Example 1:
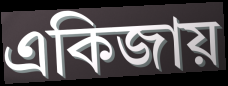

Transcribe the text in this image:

একিজায়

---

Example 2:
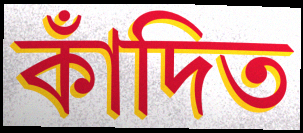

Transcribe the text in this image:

কাঁদিত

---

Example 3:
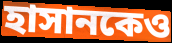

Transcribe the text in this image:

হাসানকেও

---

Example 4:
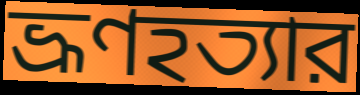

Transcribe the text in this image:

ভ্রূণহত্যার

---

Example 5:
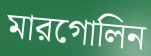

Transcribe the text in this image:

মারগোলিন